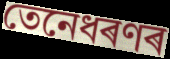
তেনেধৰণৰ